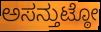
ಅಸನ್ತುಟ್ಠೋ